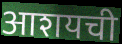
आशयची